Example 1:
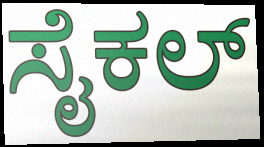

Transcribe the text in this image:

ಸೈಕಲ್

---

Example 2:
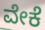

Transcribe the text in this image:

ವೇಕೆ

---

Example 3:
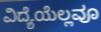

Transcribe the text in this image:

ವಿದ್ಯೆಯೆಲ್ಲವೂ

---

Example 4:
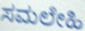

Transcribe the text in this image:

ಸಮಲೇಹಿ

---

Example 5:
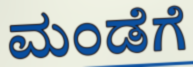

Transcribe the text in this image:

ಮಂಡೆಗೆ